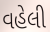
વહેલી